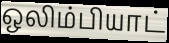
ஒலிம்பியாட்